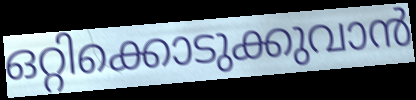
ഒറ്റിക്കൊടുക്കുവാൻ